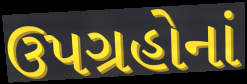
ઉપગ્રહોનાં